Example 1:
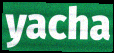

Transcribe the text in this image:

yacha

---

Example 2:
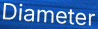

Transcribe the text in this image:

Diameter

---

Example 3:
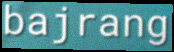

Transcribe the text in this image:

bajrang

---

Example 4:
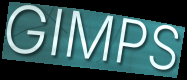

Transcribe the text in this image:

GIMPS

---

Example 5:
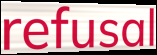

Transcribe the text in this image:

refusal